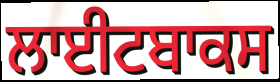
ਲਾਈਟਬਾਕਸ